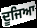
ਦੂਜਿਆ